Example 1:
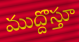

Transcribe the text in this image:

ముద్దొస్తూ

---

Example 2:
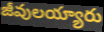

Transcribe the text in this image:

జీవులయ్యారు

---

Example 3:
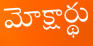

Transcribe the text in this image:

మోక్షార్థు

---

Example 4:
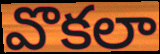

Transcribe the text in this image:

వొకలా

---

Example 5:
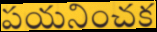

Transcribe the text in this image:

పయనించక